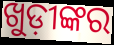
ଖୁଡ଼ୀଙ୍କର